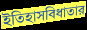
ইতিহাসবিধাতার